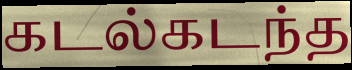
கடல்கடந்த